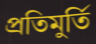
প্রতিমুর্তি